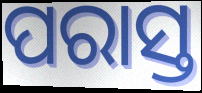
ପରାସ୍ତ